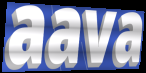
aava